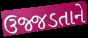
ઉજ્જડતાને